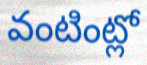
వంటింట్లో